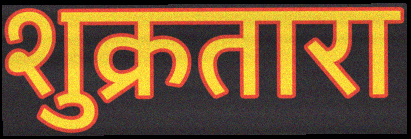
शुक्रतारा